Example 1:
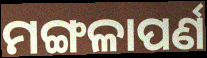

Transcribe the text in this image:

ମଙ୍ଗଳାପର୍ଣ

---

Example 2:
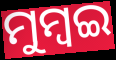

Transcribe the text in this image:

ମୁମ୍ବଇ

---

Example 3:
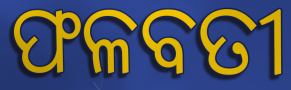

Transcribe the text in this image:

ଫଳବତୀ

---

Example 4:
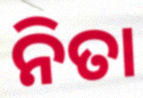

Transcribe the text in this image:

ନିତା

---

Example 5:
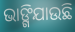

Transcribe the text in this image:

ଭାଙ୍ଗିଯାଉଛି